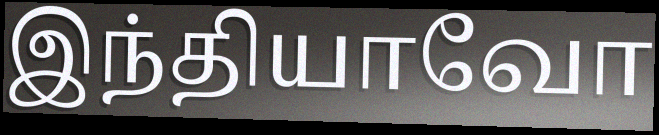
இந்தியாவோ